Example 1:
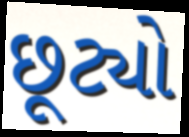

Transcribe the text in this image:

છૂટ્યો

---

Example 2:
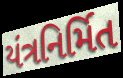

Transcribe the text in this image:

યંત્રનિર્મિત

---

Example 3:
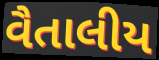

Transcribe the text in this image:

વૈતાલીય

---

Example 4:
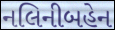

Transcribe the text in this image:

નલિનીબહેન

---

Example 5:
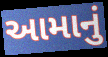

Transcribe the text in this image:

આમાનું